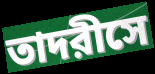
তাদরীসে